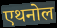
एथनोल